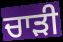
ਚਾਡ਼ੀ